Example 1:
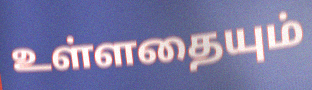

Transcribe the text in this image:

உள்ளதையும்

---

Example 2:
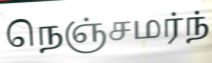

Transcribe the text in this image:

நெஞ்சமர்ந்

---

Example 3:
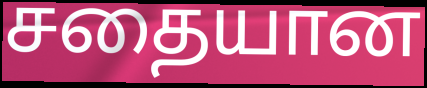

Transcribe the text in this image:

சதையான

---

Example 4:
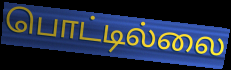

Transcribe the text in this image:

பொட்டில்லை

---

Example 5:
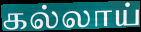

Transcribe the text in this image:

கல்லாய்